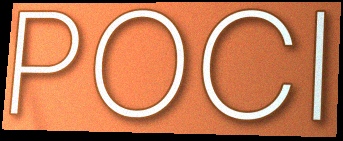
POCl